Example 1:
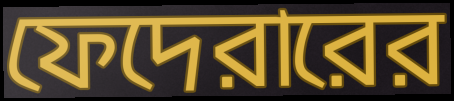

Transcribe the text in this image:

ফেদেরারের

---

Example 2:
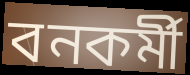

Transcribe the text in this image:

বনকর্মী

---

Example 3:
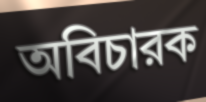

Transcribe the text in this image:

অবিচারক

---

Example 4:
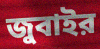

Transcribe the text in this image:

জুবাইর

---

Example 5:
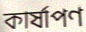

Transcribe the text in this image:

কার্ষাপণ